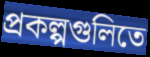
প্রকল্পগুলিতে